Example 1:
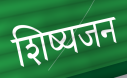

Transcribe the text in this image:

शिष्यजन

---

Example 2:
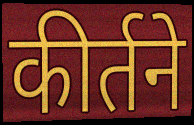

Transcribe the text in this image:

कीर्तने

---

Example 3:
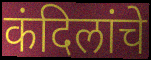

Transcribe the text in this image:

कंदिलांचे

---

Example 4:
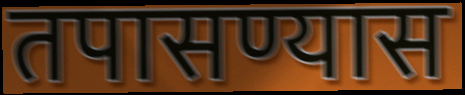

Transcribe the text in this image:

तपासण्यास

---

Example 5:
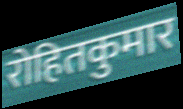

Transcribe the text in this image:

रोहितकुमार